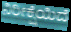
ನಿರೀಕ್ಷೆಯಿದೆ